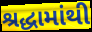
શ્રદ્ધામાંથી